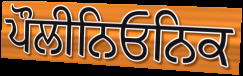
ਪੌਲੀਨਿਓਨਿਕ